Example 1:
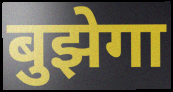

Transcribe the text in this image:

बुझेगा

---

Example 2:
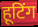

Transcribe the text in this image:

हूटिंग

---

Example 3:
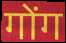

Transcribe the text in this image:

गोंग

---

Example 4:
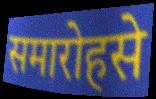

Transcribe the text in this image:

समारोहसे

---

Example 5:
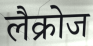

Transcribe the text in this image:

लैक्रोज